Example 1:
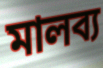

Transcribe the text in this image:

মালব্য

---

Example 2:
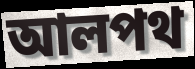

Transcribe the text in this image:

আলপথ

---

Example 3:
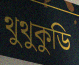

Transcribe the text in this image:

থুথুকুডি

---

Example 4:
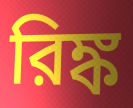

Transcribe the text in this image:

রিঙ্ক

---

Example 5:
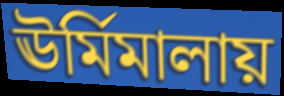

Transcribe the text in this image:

ঊর্মিমালায়